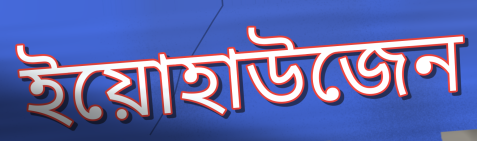
ইয়োহাউজেন